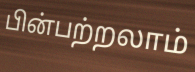
பின்பற்றலாம்